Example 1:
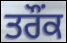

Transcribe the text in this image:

ਤਰੌਂਕ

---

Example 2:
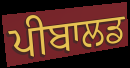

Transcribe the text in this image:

ਪੀਬਾਲਡ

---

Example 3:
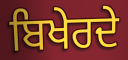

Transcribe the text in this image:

ਬਿਖੇਰਦੇ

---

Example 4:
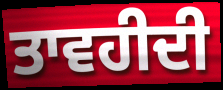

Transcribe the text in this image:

ਤਾਵਹੀਦੀ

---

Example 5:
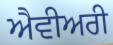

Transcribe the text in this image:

ਐਵੀਅਰੀ